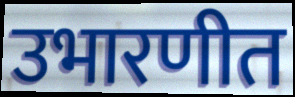
उभारणीत